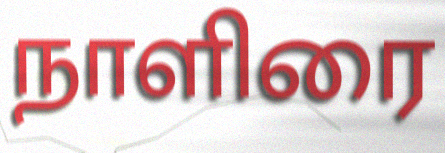
நாளிரை